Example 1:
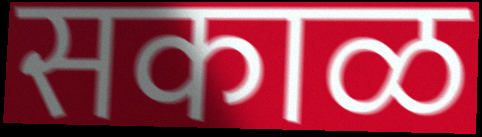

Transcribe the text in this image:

सकाळ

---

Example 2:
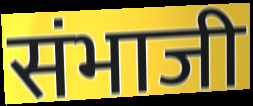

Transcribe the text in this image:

संभाजी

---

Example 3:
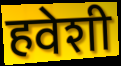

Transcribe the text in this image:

हवेशी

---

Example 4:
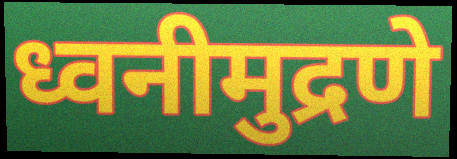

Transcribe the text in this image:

ध्वनीमुद्रणे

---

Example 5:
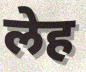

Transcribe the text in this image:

लेह